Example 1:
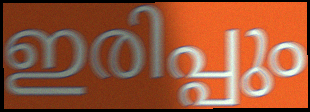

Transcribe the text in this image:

ഇരിപ്പും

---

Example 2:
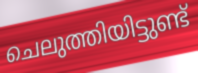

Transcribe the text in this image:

ചെലുത്തിയിട്ടുണ്ട്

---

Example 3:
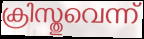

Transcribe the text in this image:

ക്രിസ്തുവെന്ന്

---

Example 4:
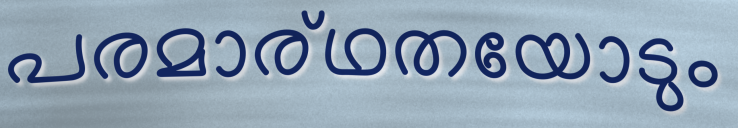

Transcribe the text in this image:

പരമാര്ഥതയോടും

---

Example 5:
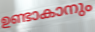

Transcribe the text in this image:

ഉണ്ടാകാനും